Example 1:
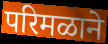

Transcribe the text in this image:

परिमळाने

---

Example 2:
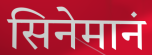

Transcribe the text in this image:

सिनेमानं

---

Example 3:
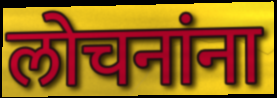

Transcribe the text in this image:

लोचनांना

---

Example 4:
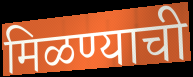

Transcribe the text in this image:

मिळण्याची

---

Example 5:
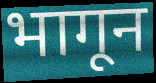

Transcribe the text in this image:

भागून